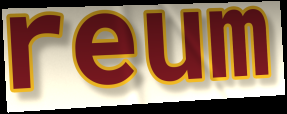
reum